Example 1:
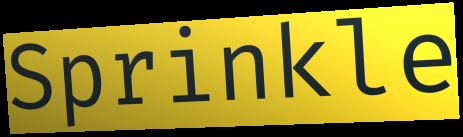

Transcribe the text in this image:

Sprinkle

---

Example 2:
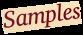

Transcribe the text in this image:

Samples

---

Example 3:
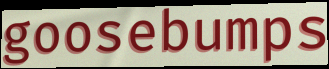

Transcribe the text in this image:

goosebumps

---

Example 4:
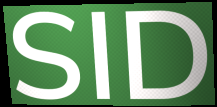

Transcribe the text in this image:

SID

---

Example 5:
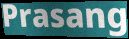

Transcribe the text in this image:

Prasang